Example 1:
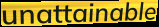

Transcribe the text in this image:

unattainable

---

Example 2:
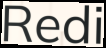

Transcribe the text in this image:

Redi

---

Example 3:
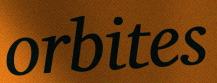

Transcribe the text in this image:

orbites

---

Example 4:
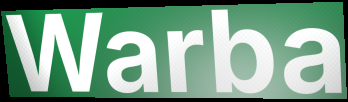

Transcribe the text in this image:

Warba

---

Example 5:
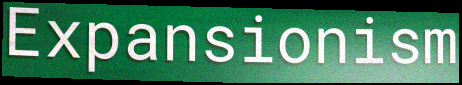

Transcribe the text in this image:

Expansionism